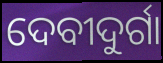
ଦେବୀଦୁର୍ଗା